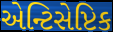
એન્ટિસેપ્ટિક